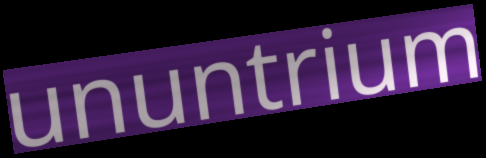
ununtrium